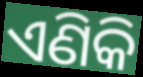
ଏଣିକି